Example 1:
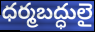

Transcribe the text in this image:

ధర్మబద్ధులై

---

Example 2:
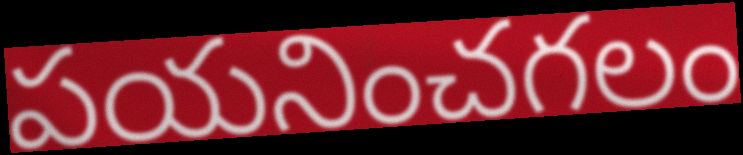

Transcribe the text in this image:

పయనించగలం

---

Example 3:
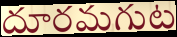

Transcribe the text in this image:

దూరమగుట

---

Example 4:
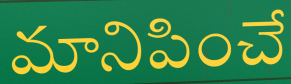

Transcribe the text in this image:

మానిపించే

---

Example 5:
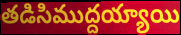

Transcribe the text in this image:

తడిసిముద్దయ్యాయి